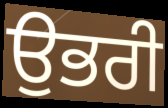
ਉਭਰੀ